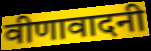
वीणावादनी